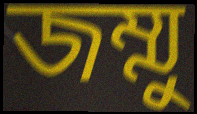
জম্মু